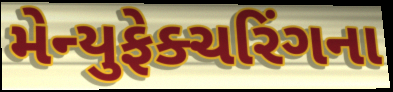
મેન્યુફેક્ચરિંગના